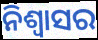
ନିଶ୍ବାସର